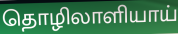
தொழிலாளியாய்